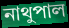
নাথুপাল